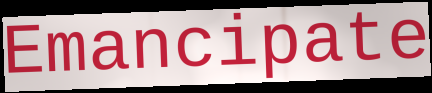
Emancipate